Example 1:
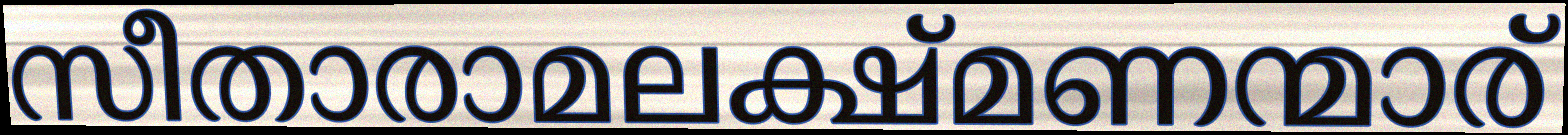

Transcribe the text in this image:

സീതാരാമലക്ഷ്മണന്മാര്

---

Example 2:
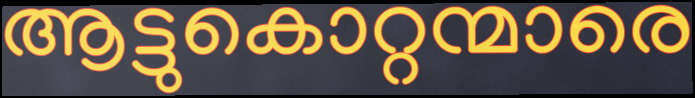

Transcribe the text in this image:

ആട്ടുകൊറ്റന്മാരെ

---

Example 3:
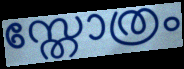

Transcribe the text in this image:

സ്തോത്രം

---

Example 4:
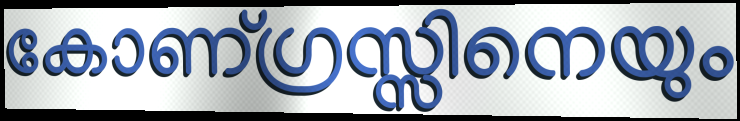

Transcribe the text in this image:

കോണ്ഗ്രസ്സിനെയും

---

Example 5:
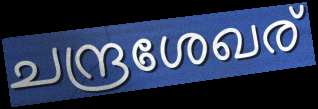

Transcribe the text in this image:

ചന്ദ്രശേഖര്